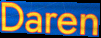
Daren